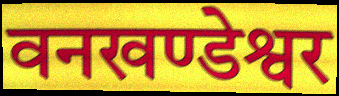
वनखण्डेश्वर